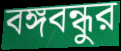
বঙ্গবন্ধুর